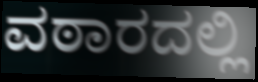
ವಠಾರದಲ್ಲಿ